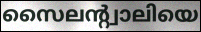
സൈലന്റ്വാലിയെ